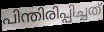
പിന്തിരിപ്പിച്ചത്